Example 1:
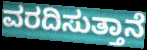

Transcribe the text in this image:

ವರದಿಸುತ್ತಾನೆ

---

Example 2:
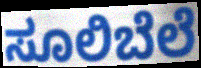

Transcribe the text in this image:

ಸೂಲಿಬೆಲೆ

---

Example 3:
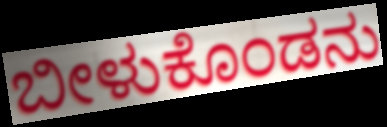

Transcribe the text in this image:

ಬೀಳುಕೊಂಡನು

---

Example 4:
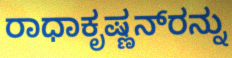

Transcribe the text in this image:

ರಾಧಾಕೃಷ್ಣನ್‌ರನ್ನು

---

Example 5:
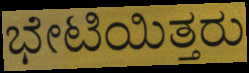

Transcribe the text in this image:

ಭೇಟಿಯಿತ್ತರು